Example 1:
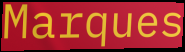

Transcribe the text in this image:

Marques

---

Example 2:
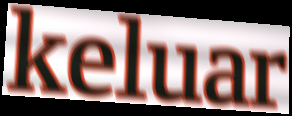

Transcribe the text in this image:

keluar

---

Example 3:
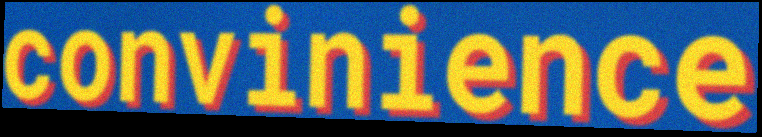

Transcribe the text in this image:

convinience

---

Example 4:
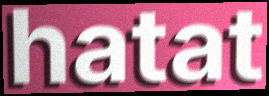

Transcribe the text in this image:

hatat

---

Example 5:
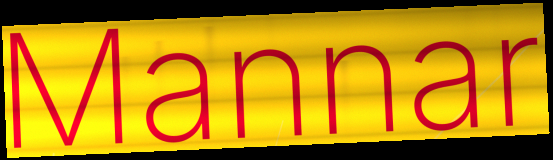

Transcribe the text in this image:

Mannar